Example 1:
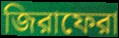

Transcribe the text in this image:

জিরাফেরা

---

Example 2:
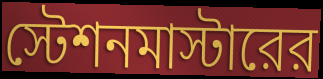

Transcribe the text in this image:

স্টেশনমাস্টারের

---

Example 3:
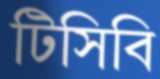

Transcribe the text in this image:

টিসিবি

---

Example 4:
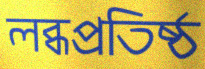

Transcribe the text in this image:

লব্ধপ্রতিষ্ঠ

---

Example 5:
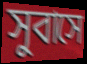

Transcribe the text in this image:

সুবাসে